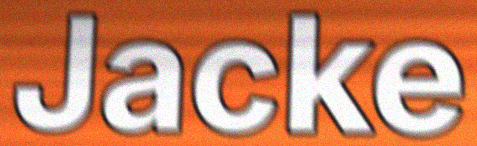
Jacke